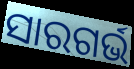
ସାରଗର୍ଭ